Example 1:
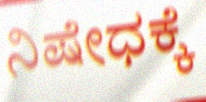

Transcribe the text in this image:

ನಿಷೇಧಕ್ಕೆ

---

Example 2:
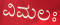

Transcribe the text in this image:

ವಿಮಲಃ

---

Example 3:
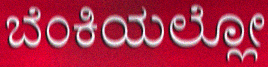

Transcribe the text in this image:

ಬೆಂಕಿಯಲ್ಲೋ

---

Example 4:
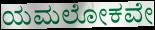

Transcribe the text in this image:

ಯಮಲೋಕವೇ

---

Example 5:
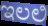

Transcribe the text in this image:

ಇಲಲಿ